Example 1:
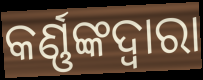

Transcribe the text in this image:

କର୍ଣ୍ଣଙ୍କଦ୍ୱାରା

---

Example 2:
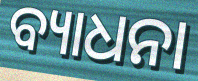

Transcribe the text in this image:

ବ୍ୟାଧନା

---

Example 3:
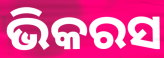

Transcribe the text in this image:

ଭିକରସ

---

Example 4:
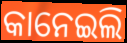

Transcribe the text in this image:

କାନେଇଲି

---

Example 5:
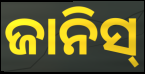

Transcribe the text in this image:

ଜାନିସ୍